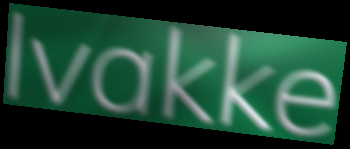
Ivakke